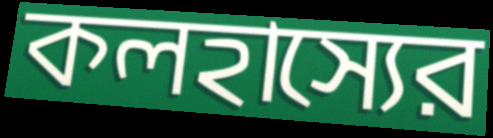
কলহাস্যের